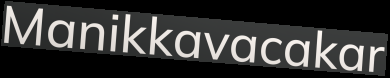
Manikkavacakar